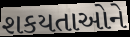
શકયતાઓને